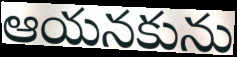
ఆయనకును